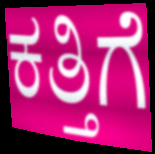
ಕತ್ತಿಗೆ